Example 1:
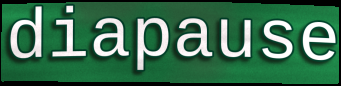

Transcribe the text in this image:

diapause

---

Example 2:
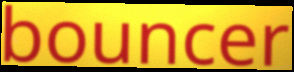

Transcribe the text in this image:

bouncer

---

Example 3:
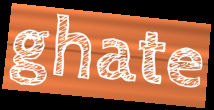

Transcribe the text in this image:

ghate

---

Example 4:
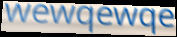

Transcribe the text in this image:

wewqewqe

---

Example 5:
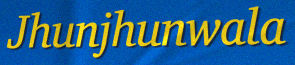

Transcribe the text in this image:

Jhunjhunwala